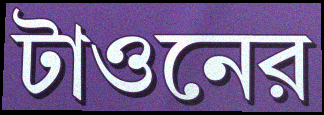
টাওনের